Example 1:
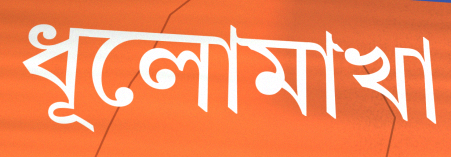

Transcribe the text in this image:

ধূলোমাখা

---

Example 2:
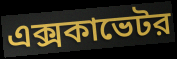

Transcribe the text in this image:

এক্সকাভেটর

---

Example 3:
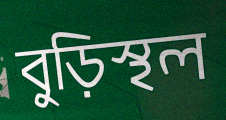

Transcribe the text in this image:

বুড়িস্থল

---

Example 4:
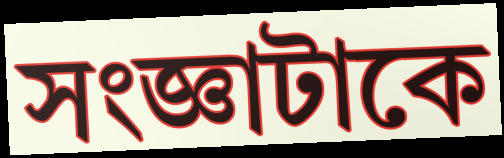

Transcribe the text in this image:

সংজ্ঞাটাকে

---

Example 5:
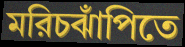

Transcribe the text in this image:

মরিচঝাঁপিতে